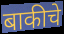
बाकीचे